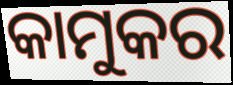
କାମୁକର